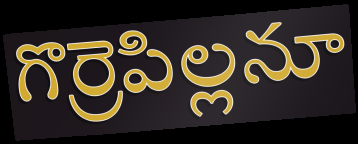
గొర్రెపిల్లనూ